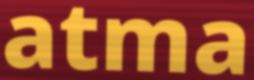
atma